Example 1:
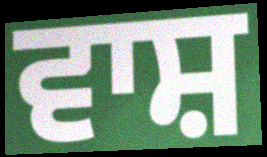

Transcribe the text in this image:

ਵਾਸ਼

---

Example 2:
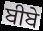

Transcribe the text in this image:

ਬੀਬੇ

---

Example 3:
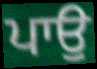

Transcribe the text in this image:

ਪਾਉ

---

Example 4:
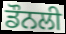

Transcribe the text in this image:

ਡੌਨਲੀ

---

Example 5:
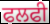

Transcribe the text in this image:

ਫਲਫੀ